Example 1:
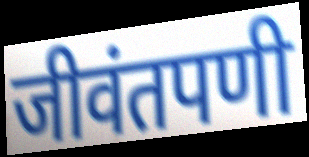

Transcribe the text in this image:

जीवंतपणी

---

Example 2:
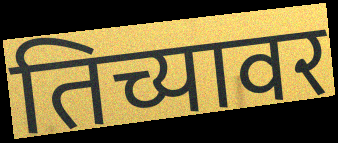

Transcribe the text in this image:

तिच्यावर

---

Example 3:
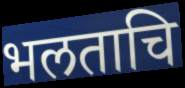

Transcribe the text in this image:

भलताचि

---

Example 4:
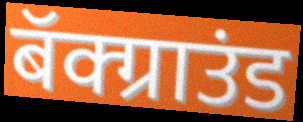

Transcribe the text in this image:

बॅक्ग्राउंड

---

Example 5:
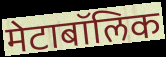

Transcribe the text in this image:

मेटाबॉलिक